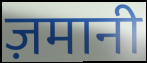
ज़मानी